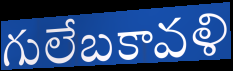
గులేబకావళి